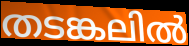
തടങ്കലിൽ